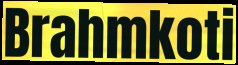
Brahmkoti